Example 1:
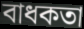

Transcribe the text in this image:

বাধকতা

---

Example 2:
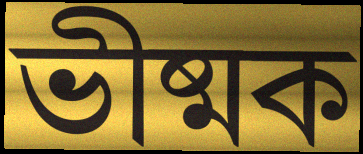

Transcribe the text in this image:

ভীষ্মক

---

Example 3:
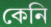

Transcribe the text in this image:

কেনি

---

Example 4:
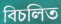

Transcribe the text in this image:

বিচলিত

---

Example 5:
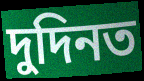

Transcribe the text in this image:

দুদিনত